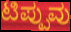
ಟಿಪ್ಪುವು